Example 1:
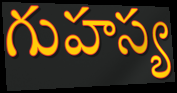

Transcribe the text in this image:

గుహస్య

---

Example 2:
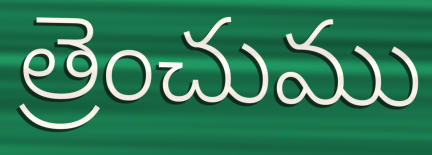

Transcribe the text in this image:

త్రెంచుము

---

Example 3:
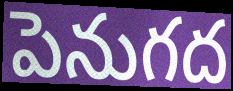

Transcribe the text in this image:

పెనుగద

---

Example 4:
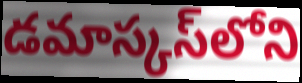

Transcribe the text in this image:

డమాస్కస్‌లోని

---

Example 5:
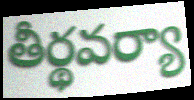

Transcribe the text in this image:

తీర్థవర్యా